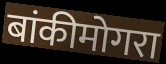
बांकीमोगरा